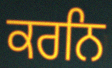
ਕਰਨਿ